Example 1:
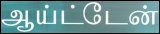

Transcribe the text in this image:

ஆய்ட்டேன்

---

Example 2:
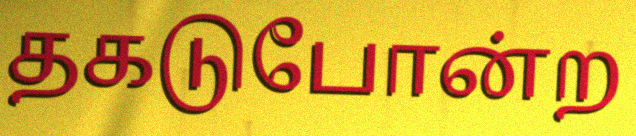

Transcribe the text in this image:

தகடுபோன்ற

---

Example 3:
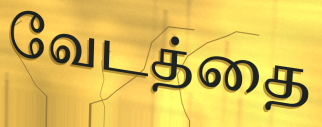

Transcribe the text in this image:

வேடத்தை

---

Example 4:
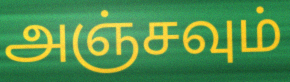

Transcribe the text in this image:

அஞ்சவும்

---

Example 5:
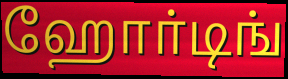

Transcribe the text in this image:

ஹோர்டிங்